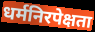
धर्मनिरपेक्षता